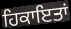
ਹਿਕਾਇਤਾਂ